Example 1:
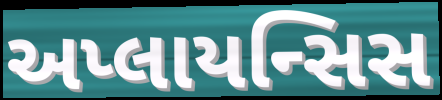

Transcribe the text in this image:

અપ્લાયન્સિસ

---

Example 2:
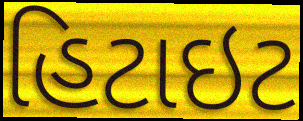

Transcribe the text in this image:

હિટાઇટ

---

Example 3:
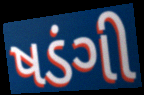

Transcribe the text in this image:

ષડંગી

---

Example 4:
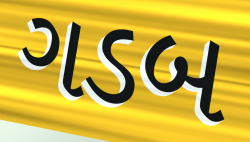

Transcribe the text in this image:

ગડબ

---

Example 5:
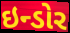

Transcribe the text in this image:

ઇન્ડોર